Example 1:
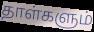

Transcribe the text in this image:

தாள்களும்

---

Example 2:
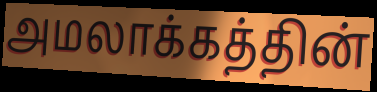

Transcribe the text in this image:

அமலாக்கத்தின்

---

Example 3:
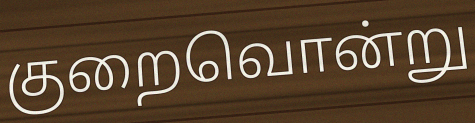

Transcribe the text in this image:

குறைவொன்று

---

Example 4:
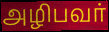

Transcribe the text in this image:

அழிபவர்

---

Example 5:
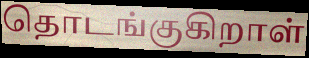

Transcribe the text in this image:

தொடங்குகிறாள்